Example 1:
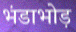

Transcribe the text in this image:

भंडाभोड़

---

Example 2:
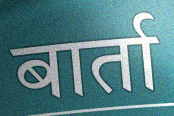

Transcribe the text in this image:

बार्ता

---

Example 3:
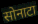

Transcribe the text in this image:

सोनाटा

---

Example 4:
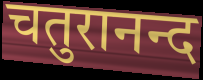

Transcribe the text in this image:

चतुरानन्द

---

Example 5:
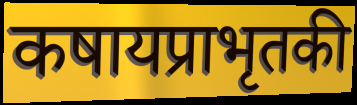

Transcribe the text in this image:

कषायप्राभृतकी